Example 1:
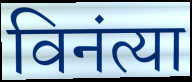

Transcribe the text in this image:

विनंत्या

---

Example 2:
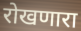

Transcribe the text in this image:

रोखणारा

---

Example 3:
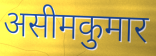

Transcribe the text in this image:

असीमकुमार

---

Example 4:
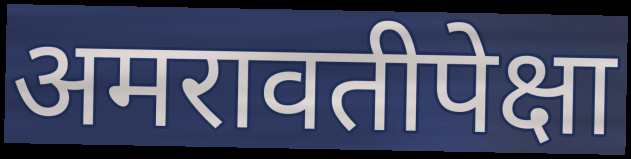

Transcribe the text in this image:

अमरावतीपेक्षा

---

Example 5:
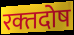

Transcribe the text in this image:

रक्‍तदोष